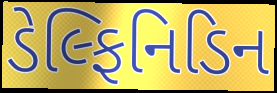
ડેલ્ફિનિડિન